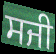
ਸਜੀ